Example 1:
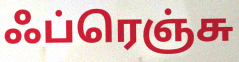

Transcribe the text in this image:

ஃப்ரெஞ்சு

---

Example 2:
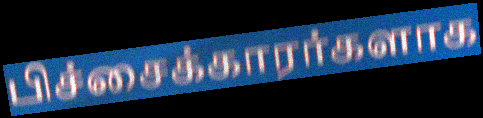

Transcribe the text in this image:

பிச்சைக்காரர்களாக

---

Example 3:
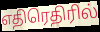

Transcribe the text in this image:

எதிரெதிரில்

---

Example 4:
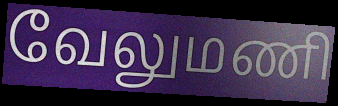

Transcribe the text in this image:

வேலுமணி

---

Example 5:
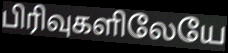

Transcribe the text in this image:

பிரிவுகளிலேயே